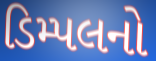
ડિમ્પલનો